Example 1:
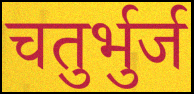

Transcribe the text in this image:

चतुर्भुर्ज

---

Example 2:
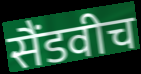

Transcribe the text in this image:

सैंडवीच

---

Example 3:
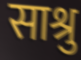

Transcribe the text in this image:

साश्रु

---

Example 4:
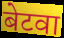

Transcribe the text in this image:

बेटवा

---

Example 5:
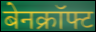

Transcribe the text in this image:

बेनक्रॉफ्ट